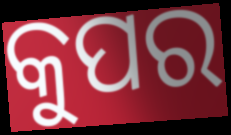
କୁପର